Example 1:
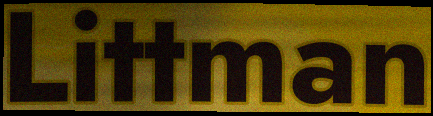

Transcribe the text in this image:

Littman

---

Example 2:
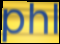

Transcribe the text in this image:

phl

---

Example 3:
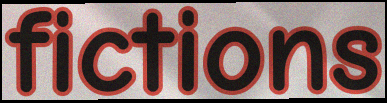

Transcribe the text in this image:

fictions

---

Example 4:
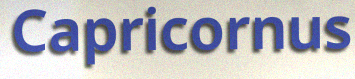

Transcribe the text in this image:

Capricornus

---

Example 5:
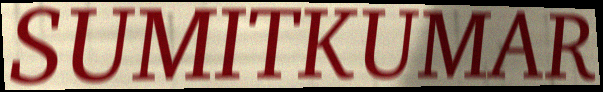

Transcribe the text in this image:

SUMITKUMAR